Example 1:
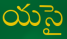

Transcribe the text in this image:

యసై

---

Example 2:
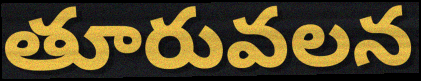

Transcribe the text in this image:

తూరువలన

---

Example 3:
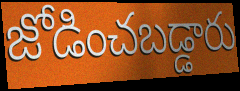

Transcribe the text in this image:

జోడించబడ్డారు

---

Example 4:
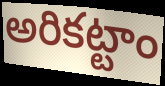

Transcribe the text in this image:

అరికట్టాం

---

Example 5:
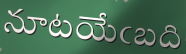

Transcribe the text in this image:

నూటయేఁబది